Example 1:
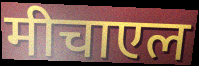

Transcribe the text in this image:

मीचाएल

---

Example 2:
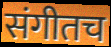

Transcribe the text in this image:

संगीतच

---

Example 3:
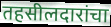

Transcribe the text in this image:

तहसीलदारांचा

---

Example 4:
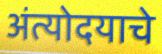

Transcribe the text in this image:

अंत्योदयाचे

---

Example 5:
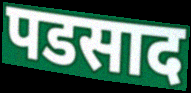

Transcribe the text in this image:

पडसाद